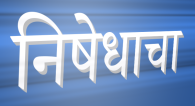
निषेधाचा